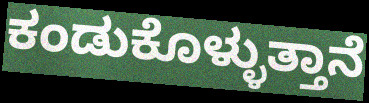
ಕಂಡುಕೊಳ್ಳುತ್ತಾನೆ